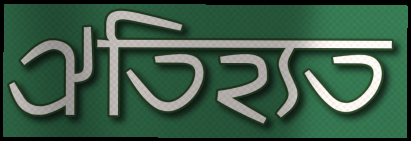
ঐতিহ্যত